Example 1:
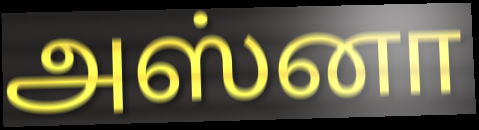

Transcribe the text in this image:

அஸ்னா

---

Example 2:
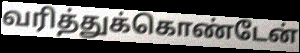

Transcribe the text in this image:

வரித்துக்கொண்டேன்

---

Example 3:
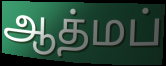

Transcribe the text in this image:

ஆத்மப்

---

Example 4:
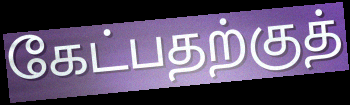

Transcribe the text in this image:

கேட்பதற்குத்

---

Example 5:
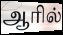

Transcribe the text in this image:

ஆரில்